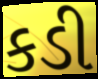
કડી